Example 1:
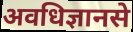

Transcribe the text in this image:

अवधिज्ञानसे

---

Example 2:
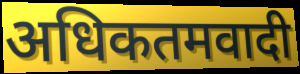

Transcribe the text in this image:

अधिकतमवादी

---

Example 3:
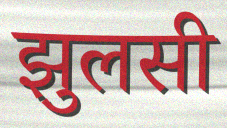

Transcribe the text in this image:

झुलसी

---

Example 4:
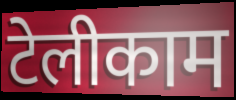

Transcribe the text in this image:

टेलीकाम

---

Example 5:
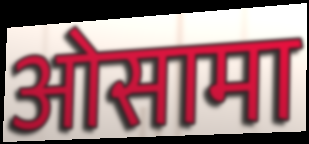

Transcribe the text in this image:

ओसामा